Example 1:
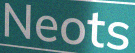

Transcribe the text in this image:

Neots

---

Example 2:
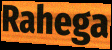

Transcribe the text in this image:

Rahega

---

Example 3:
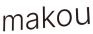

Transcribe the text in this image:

makou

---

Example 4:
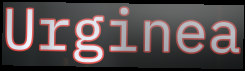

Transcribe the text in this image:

Urginea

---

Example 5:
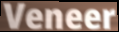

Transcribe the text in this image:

Veneer